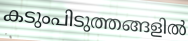
കടുംപിടുത്തങ്ങളിൽ